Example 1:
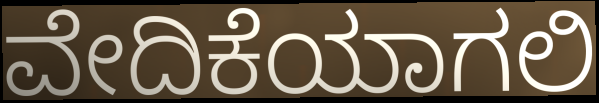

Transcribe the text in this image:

ವೇದಿಕೆಯಾಗಲಿ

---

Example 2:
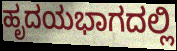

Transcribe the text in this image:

ಹೃದಯಭಾಗದಲ್ಲಿ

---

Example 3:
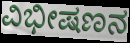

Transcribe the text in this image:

ವಿಭೀಷಣನ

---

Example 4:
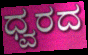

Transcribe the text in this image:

ಧ್ವರದ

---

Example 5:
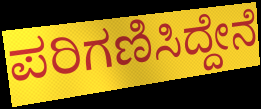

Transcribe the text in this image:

ಪರಿಗಣಿಸಿದ್ದೇನೆ